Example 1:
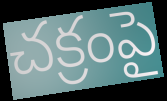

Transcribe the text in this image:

చక్రంపై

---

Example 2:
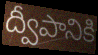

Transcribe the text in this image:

ద్వీపానికి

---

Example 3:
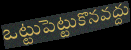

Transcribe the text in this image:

ఒట్టుపెట్టుకొనవద్దు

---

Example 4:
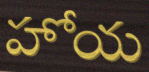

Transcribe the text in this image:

హోయ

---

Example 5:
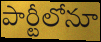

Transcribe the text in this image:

పార్టీలోనూ